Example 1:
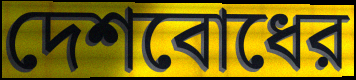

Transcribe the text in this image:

দেশবোধের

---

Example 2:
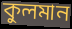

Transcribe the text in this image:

কুলমান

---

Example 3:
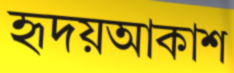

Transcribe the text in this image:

হৃদয়আকাশ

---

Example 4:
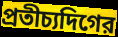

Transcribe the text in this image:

প্রতীচ্যদিগের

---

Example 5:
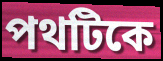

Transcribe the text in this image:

পথটিকে